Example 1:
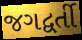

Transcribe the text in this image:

જગદ્વર્તી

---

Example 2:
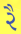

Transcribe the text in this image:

રૈ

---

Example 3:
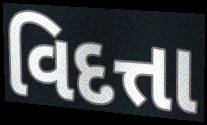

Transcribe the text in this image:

વિદત્તા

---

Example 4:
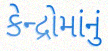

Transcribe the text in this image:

કેન્દ્રોમાંનું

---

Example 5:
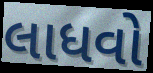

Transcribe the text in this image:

લાધવો